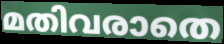
മതിവരാതെ